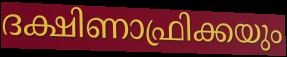
ദക്ഷിണാഫ്രിക്കയും